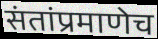
संतांप्रमाणेच